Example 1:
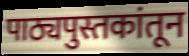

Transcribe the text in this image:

पाठ्यपुस्तकांतून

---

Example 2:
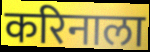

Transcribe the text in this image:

करिनाला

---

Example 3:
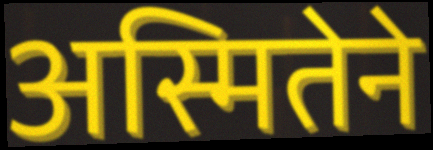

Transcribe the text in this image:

अस्मितेने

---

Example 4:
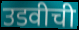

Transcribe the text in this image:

उडवीची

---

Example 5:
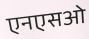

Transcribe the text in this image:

एनएसओ